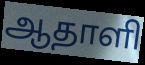
ஆதாளி